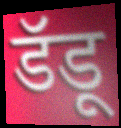
डॅडू